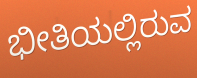
ಭೀತಿಯಲ್ಲಿರುವ